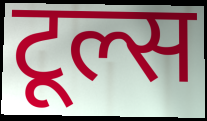
टूल्स